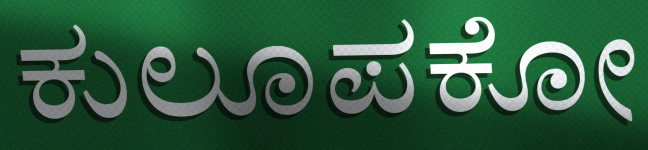
ಕುಲೂಪಕೋ